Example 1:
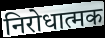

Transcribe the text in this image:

निरोधात्मक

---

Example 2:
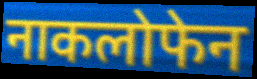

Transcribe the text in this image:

नाकलोफेन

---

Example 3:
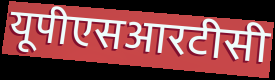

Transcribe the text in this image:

यूपीएसआरटीसी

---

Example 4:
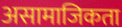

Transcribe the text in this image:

असामाजिकता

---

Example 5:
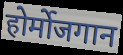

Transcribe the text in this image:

होर्मोजगान